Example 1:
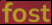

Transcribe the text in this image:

fost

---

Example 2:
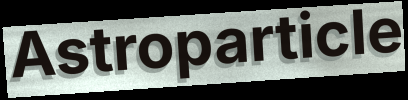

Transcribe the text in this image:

Astroparticle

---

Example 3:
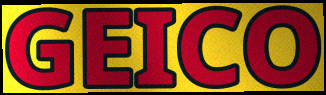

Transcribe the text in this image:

GEICO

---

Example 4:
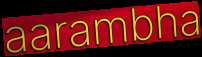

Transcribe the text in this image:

aarambha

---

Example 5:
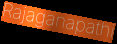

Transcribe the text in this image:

Rajaganapathi